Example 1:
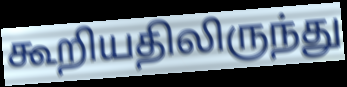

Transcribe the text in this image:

கூறியதிலிருந்து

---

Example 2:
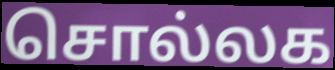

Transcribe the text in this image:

சொல்லக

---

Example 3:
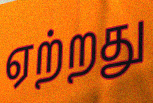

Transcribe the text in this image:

ஏற்றது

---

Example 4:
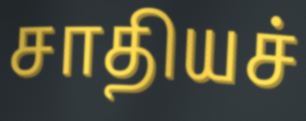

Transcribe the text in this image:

சாதியச்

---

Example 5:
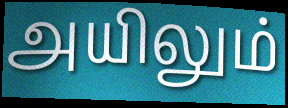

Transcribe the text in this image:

அயிலும்